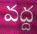
వద్ద